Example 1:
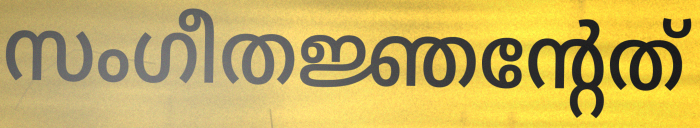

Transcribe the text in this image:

സംഗീതജ്ഞന്റേത്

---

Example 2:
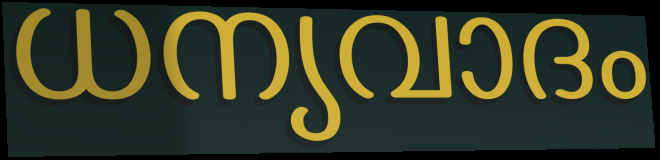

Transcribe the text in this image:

ധന്യവാദം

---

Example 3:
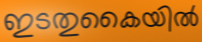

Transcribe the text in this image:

ഇടതുകൈയിൽ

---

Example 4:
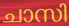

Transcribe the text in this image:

ചാസി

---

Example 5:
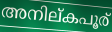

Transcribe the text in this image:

അനില്കപൂര്